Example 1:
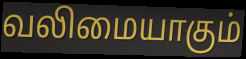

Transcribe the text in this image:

வலிமையாகும்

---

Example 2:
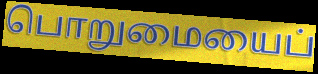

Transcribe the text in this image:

பொறுமையைப்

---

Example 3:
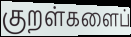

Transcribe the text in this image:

குறள்களைப்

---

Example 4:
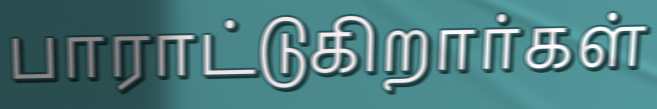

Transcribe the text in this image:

பாராட்டுகிறார்கள்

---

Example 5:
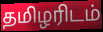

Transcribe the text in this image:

தமிழரிடம்